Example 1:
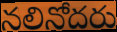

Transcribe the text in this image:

నలినోదరు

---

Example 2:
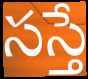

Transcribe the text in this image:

సస్తే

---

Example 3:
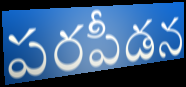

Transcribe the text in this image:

పరపీడన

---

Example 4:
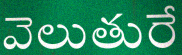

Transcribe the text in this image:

వెలుతురే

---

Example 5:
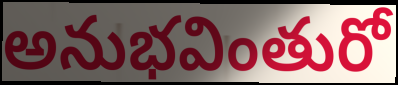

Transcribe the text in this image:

అనుభవింతురో